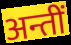
अन्तीं